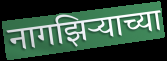
नागझिऱ्याच्या